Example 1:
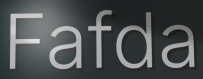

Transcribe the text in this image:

Fafda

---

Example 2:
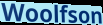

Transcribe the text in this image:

Woolfson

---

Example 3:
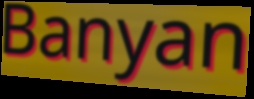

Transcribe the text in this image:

Banyan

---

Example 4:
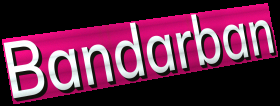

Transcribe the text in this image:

Bandarban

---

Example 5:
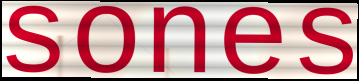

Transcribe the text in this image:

sones